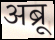
अब्रू